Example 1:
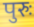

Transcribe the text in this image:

पुरुः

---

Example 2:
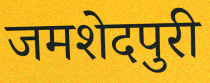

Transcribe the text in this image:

जमशेदपुरी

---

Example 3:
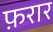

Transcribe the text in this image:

फ़रार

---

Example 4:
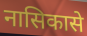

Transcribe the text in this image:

नासिकासे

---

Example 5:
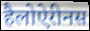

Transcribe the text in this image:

हैलोऐरीनस